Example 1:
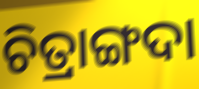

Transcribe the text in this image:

ଚିତ୍ରାଙ୍ଗଦା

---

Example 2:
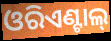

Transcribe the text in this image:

ଓରିଏଣ୍ଟାଲ୍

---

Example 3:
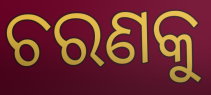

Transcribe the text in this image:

ଚରଣକୁ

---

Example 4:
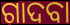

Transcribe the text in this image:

ଗାଦବା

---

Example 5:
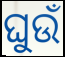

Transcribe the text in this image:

ଘୁଉଁ